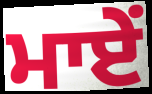
ਮਾਏਂ